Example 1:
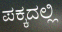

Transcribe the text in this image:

ಪಕ್ಕದಲ್ಲಿ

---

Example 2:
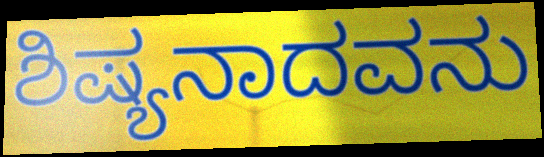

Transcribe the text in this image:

ಶಿಷ್ಯನಾದವನು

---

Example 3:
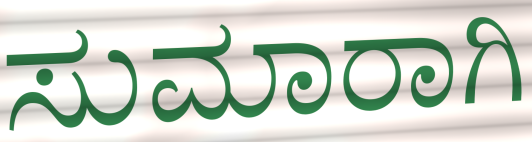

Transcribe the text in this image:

ಸುಮಾರಾಗಿ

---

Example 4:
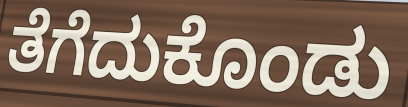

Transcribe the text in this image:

ತೆಗೆದುಕೊಂಡು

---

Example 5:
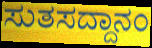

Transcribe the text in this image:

ಸುತಸದ್ದಾನಂ